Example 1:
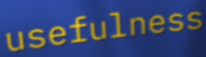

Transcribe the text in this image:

usefulness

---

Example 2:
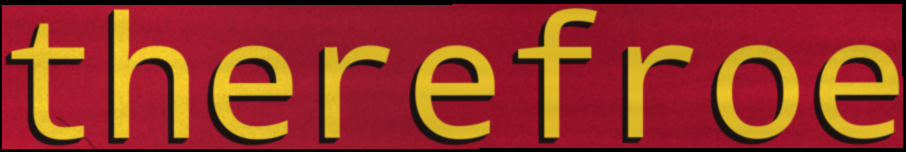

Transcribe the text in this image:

therefroe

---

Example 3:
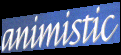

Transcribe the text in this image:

animistic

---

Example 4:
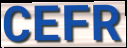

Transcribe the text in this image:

CEFR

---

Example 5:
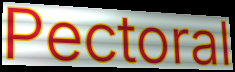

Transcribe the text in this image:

Pectoral